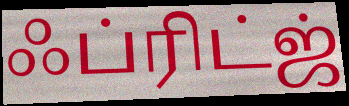
ஃப்ரிட்ஜ்